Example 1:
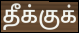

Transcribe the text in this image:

தீக்குக்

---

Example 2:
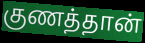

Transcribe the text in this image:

குணத்தான்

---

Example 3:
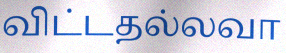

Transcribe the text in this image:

விட்டதல்லவா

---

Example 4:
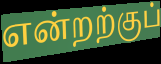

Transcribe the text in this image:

என்றற்குப்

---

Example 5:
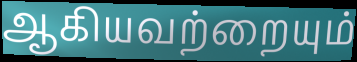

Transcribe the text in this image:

ஆகியவற்றையும்